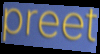
preet